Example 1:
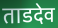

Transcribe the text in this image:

ताडदेव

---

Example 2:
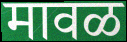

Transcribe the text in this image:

मावळ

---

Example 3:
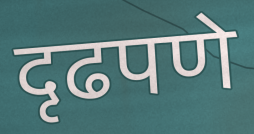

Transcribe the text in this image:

दृढपणे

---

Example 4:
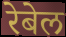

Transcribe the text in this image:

रेबेल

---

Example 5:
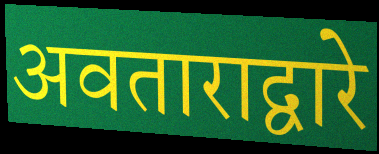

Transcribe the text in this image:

अवताराद्वारे